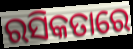
ରସିକତାରେ